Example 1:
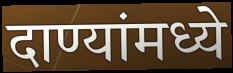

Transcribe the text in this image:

दाण्यांमध्ये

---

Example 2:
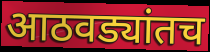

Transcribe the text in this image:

आठवड्यांतच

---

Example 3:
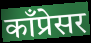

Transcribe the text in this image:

काँप्रेसर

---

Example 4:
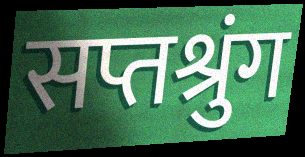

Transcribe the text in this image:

सप्तश्रुंग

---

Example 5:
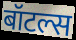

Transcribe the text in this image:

बॉटल्स